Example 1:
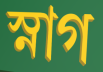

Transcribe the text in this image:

স্নাগ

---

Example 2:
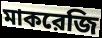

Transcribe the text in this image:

মাকরেজি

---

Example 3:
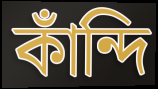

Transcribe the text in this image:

কাঁন্দি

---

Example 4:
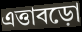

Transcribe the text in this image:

এত্তাবড়ো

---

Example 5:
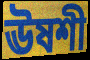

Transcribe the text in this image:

ঊষশী